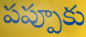
పప్పూకు